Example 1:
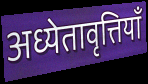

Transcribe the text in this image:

अध्येतावृत्तियाँ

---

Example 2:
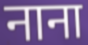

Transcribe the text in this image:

नाना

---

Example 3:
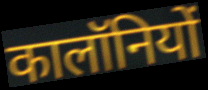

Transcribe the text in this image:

कालॉनियों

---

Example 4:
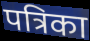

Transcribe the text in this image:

पत्रिका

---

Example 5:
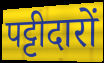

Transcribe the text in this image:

पट्टीदारों